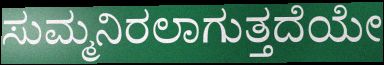
ಸುಮ್ಮನಿರಲಾಗುತ್ತದೆಯೇ